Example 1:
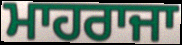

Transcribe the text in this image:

ਮਾਹਰਾਜਾ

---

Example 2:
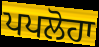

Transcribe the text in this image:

ਪਪਲੋਹਾ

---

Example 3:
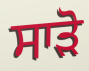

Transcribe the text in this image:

ਸਾੜੋ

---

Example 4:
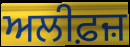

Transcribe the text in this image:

ਅਲੀਫ਼ਜ਼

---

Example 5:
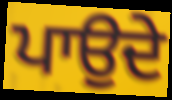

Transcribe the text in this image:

ਪਾਉਦੇ